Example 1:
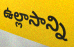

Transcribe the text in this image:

ఉల్లాసాన్ని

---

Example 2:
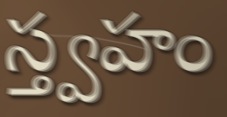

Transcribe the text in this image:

స్త్వహం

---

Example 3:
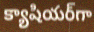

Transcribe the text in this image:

క్యాషియర్‌గా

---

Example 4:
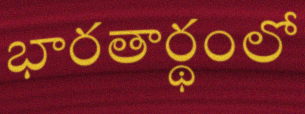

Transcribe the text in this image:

భారతార్థంలో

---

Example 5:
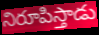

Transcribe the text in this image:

నిరూపిస్తాడు